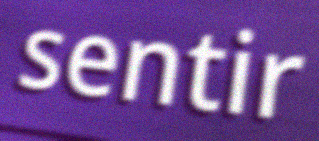
sentir